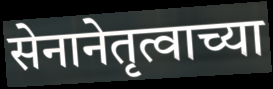
सेनानेतृत्वाच्या